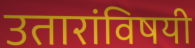
उतारांविषयी